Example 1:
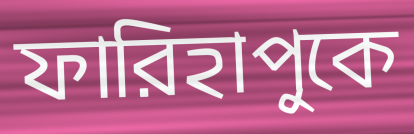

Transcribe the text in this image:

ফারিহাপুকে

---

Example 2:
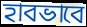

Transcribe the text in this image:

হাবভাবে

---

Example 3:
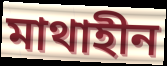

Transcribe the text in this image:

মাথাহীন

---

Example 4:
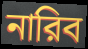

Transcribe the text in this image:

নারিব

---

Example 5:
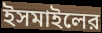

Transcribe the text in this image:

ইসমাইলের